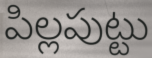
పిల్లపుట్టు